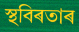
স্থবিৰতাৰ